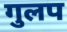
गुलप